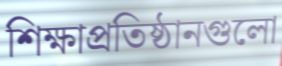
শিক্ষাপ্রতিষ্ঠানগুলো